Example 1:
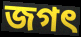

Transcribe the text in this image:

জগৎ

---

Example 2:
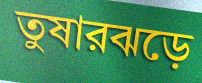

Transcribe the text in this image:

তুষারঝড়ে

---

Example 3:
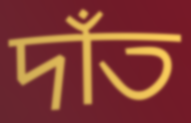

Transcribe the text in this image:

দাঁত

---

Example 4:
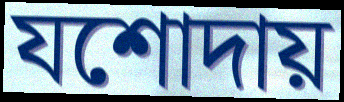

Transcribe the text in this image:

যশোদায়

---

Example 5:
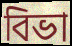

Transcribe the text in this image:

বিভা